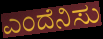
ಎಂದೆನಿಸು